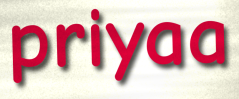
priyaa